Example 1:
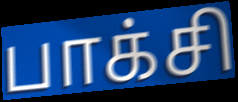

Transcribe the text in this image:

பாக்சி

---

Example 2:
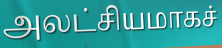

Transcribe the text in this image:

அலட்சியமாகச்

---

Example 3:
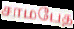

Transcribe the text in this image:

சாமபேத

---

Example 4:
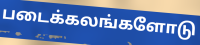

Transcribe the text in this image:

படைக்கலங்களோடு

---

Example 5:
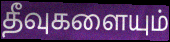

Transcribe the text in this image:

தீவுகளையும்